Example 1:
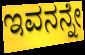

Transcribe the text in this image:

ಇವನನ್ನೇ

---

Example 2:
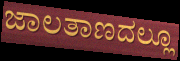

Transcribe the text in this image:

ಜಾಲತಾಣದಲ್ಲೂ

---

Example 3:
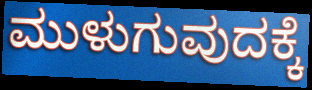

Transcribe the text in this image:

ಮುಳುಗುವುದಕ್ಕೆ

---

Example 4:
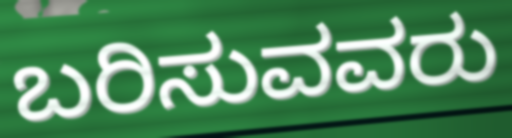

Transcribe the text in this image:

ಬರಿಸುವವರು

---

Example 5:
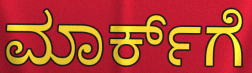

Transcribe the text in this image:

ಮಾರ್ಕ್‌ಗೆ